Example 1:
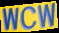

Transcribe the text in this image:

WCW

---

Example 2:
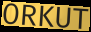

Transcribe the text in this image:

ORKUT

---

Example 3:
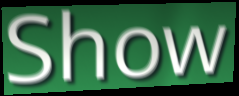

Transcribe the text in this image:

Show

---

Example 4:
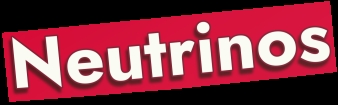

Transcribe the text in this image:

Neutrinos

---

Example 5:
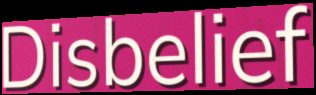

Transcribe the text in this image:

Disbelief